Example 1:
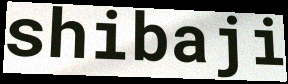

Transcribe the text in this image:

shibaji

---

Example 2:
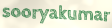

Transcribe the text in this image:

sooryakumar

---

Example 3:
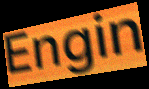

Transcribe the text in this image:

Engin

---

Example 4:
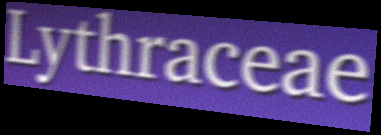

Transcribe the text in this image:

Lythraceae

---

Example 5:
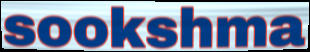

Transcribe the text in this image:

sookshma